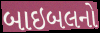
બાઇબલનો